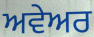
ਅਵੇਅਰ